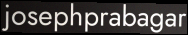
josephprabagar